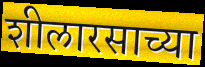
शीलारसाच्या